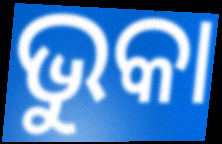
ଭୁକା